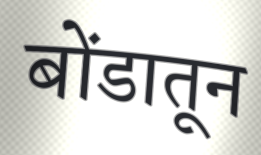
बोंडातून